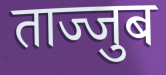
ताज्जुब